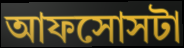
আফসোসটা